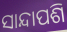
ସାନ୍ଦାପଶି